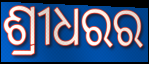
ଶ୍ରୀଧରର